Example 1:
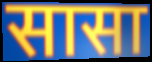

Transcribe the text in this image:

सासा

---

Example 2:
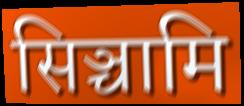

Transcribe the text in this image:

सिञ्चामि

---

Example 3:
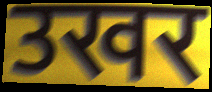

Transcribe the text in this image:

उखर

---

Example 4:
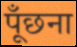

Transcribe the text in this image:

पूँछना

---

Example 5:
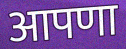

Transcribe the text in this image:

आपणा